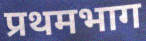
प्रथमभाग